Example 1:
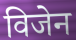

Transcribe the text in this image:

विजेन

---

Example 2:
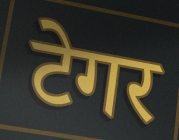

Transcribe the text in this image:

टेगर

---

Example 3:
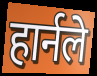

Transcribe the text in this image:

हार्नले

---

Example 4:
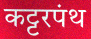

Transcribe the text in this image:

कट्टरपंथ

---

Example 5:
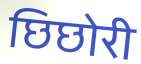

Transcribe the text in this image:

छिछोरी